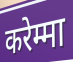
करेम्मा